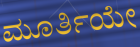
ಮೂರ್ತಿಯೇ